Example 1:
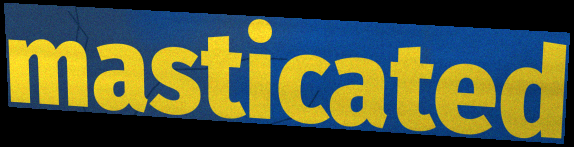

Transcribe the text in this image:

masticated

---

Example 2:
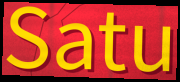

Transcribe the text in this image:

Satu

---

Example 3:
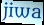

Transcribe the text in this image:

jiwa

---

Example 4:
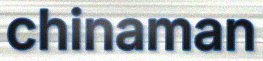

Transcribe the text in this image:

chinaman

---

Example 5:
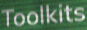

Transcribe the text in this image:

Toolkits